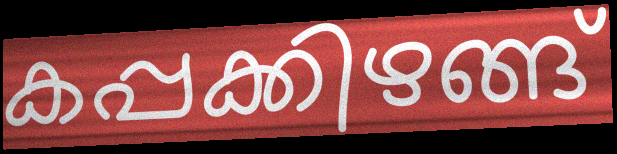
കപ്പക്കിഴങ്ങ്